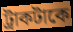
ট্রাকটাকে